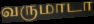
வருமாடா